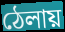
ঠেলায়